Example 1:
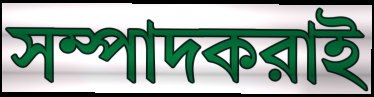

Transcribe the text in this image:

সম্পাদকরাই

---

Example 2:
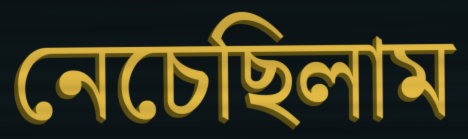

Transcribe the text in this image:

নেচেছিলাম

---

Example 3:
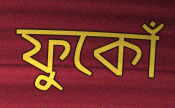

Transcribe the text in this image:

ফুকোঁ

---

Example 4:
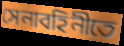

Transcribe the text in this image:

সেনাবহিনীতে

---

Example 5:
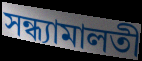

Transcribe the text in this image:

সন্ধ্যামালতী